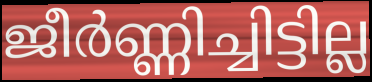
ജീർണ്ണിച്ചിട്ടില്ല